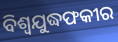
ବିଶ୍ୱଯୁଦ୍ଧଫକୀର